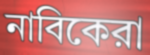
নাবিকেরা